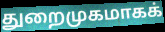
துறைமுகமாகக்